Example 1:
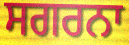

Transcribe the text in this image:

ਸਗਰਨਾ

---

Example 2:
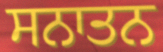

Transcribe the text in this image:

ਸਨਾਤਨ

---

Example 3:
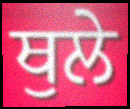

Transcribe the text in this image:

ਥੁਲੇ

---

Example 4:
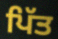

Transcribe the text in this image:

ਪਿੱਤ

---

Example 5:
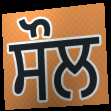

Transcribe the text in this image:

ਸੌਲ